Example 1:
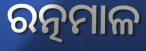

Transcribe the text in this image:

ରତ୍ନମାଳ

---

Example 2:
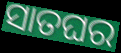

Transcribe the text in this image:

ସାତଘର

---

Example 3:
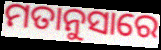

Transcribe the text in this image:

ମତାନୁସାରେ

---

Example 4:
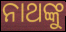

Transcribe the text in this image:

ନାଥଙ୍କୁ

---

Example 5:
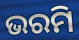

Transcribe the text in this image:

ଭରମି